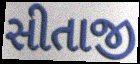
સીતાજી